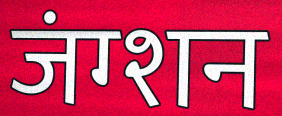
जंग्शन